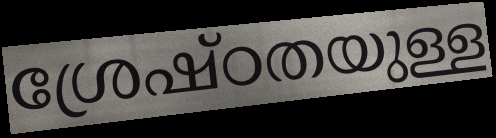
ശ്രേഷ്ഠതയുള്ള